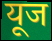
यूज